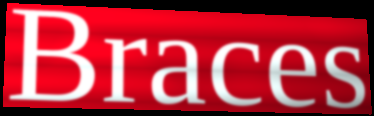
Braces